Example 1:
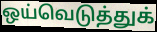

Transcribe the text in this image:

ஒய்வெடுத்துக்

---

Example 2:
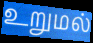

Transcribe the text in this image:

உறுமல்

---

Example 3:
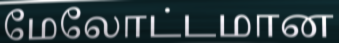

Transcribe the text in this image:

மேலோட்டமான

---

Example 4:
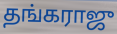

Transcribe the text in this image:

தங்கராஜு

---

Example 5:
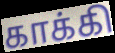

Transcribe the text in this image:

காக்கி